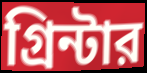
গ্রিন্টার